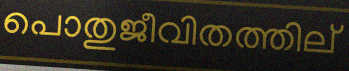
പൊതുജീവിതത്തില്